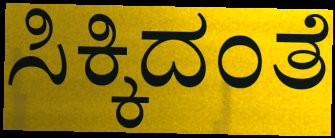
ಸಿಕ್ಕಿದಂತೆ